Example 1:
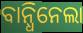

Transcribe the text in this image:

ବାନ୍ଧିନେଲା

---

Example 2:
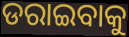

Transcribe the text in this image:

ଡରାଇବାକୁ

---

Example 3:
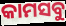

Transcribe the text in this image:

କାମସବୁ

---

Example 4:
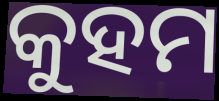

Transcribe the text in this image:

କୁହମ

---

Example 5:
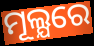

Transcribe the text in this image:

ମୂଲ୍ଯରେ